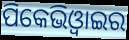
ପିକେଭିଓ୍ବାଇର